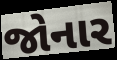
જોનાર